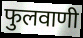
फुलवाणी